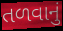
તળવાનું